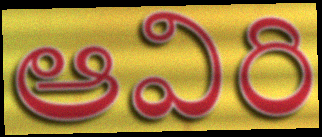
ఆవిరి